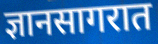
ज्ञानसागरात